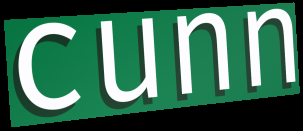
cunn